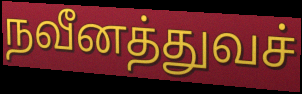
நவீனத்துவச்